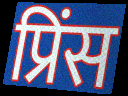
प्रिंस